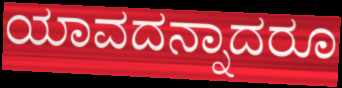
ಯಾವದನ್ನಾದರೂ